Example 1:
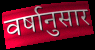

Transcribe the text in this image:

वर्षानुसार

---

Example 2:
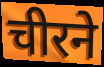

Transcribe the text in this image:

चीरने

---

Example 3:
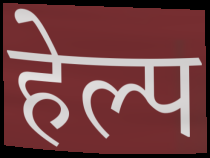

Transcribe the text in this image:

हेल्प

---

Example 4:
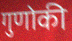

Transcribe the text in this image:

गुणोकी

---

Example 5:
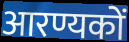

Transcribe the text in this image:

आरण्यकों